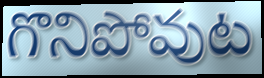
గొనిపోవుట